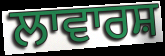
ਲਾਵਾਰਸ਼